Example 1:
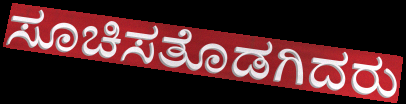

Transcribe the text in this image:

ಸೂಚಿಸತೊಡಗಿದರು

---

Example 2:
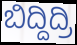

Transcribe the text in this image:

ಬಿದ್ದಿದ್ರಿ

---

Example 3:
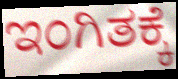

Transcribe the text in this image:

ಇಂಗಿತಕ್ಕೆ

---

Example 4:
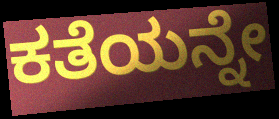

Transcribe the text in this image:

ಕತೆಯನ್ನೇ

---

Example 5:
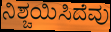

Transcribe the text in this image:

ನಿಶ್ಚಯಿಸಿದೆವು